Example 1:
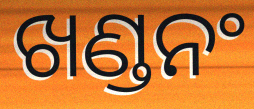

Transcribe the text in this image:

ଖଣ୍ଡନଂ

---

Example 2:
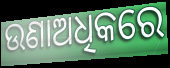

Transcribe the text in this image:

ଉଣାଅଧିକରେ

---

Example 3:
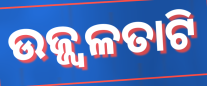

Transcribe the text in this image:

ଉଜ୍ଜ୍ୱଳତାଟି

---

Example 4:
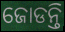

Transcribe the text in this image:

ଜୋଡନ୍ତି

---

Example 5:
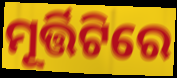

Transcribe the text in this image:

ମୂର୍ତ୍ତିଟିରେ